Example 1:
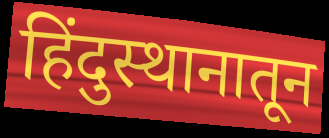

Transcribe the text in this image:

हिंदुस्थानातून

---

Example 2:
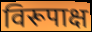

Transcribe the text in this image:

विरूपाक्ष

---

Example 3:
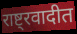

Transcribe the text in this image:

राष्ट्रवादीत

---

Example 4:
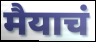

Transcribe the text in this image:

मैयाचं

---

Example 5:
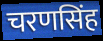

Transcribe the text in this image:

चरणसिंह